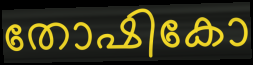
തോഷികോ